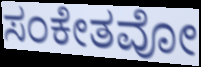
ಸಂಕೇತವೋ